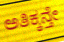
ಅತಿಕ್ಕನ್ತೇ